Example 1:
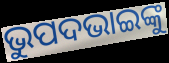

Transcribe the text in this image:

ଭୁପଦଭାଇଙ୍କୁ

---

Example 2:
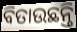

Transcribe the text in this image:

ବିତାଉଛନ୍ତି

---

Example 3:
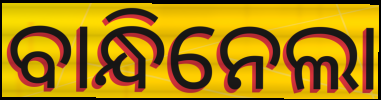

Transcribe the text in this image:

ବାନ୍ଧିନେଲା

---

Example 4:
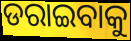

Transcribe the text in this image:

ଡରାଇବାକୁ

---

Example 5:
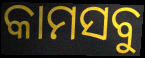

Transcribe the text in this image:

କାମସବୁ